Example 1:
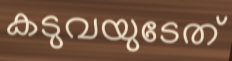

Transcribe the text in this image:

കടുവയുടേത്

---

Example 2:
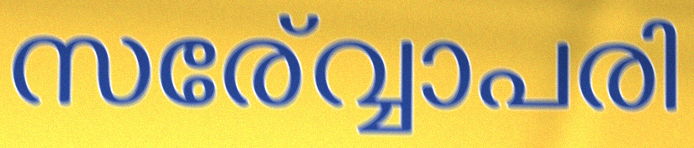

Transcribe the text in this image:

സര്വ്വോപരി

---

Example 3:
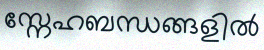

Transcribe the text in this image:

സ്നേഹബന്ധങ്ങളിൽ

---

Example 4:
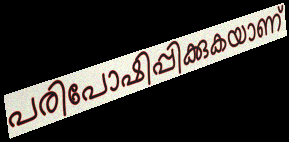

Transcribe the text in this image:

പരിപോഷിപ്പിക്കുകയാണ്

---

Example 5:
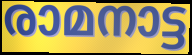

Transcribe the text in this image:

രാമനാട്ട